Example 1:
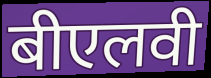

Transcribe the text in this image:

बीएलवी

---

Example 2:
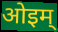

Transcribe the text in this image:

ओइम्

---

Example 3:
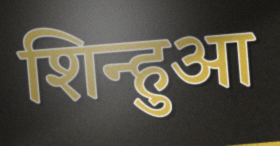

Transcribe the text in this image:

शिन्‍हुआ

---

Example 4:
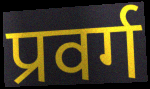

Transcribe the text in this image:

प्रवर्ग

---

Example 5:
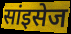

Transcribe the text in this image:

सांइसेज